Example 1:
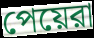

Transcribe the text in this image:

পেয়েরা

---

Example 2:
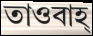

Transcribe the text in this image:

তাওবাহ্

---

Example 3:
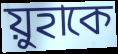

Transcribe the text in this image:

য়ুহাকে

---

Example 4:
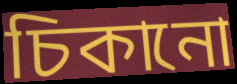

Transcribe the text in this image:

চিকানো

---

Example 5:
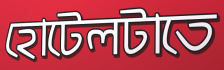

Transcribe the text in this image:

হোটেলটাতে